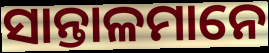
ସାନ୍ତାଳମାନେ